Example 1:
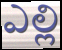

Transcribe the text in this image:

ఎల్లి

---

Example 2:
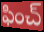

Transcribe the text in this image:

ఫించ్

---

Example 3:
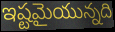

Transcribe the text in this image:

ఇష్టమైయున్నది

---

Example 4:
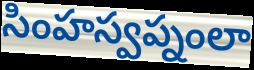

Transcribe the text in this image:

సింహస్వప్నంలా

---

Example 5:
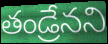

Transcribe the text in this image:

తండ్రేనని